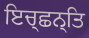
ਇਚ੍ਛਨ੍ਤਿ